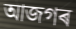
আজগৰ